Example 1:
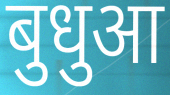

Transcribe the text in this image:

बुधुआ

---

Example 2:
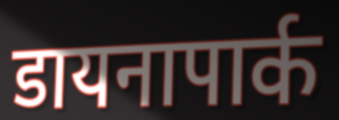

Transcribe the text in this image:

डायनापार्क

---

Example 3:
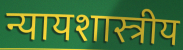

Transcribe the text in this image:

न्यायशास्त्रीय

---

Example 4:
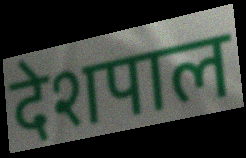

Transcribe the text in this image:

देशपाल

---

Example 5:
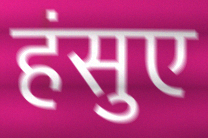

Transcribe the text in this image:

हंसुए